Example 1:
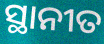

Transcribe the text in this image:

ସ୍ଥାନୀତ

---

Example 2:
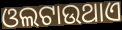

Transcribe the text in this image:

ଓଲଟାଉଥାଏ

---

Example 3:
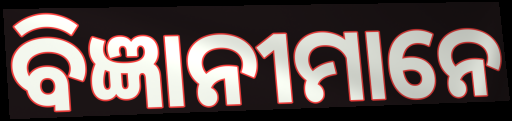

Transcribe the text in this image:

ବିଜ୍ଞାନୀମାନେ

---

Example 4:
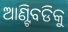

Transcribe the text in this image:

ଆଣ୍ଟିବଡିକୁ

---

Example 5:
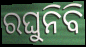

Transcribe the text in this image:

ରଘୁନିବି